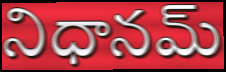
నిధానమ్